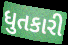
ધુતકારી